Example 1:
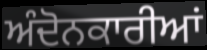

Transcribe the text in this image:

ਅੰਦੋਨਕਾਰੀਆਂ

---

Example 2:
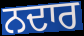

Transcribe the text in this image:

ਨਦਾਰ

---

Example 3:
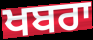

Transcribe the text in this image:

ਖਬਰਾ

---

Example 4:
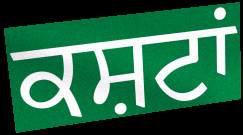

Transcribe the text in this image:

ਕਸ਼ਟਾਂ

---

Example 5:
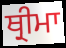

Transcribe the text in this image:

ਥ੍ਰੀਮਾ